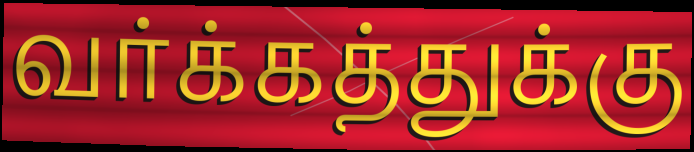
வர்க்கத்துக்கு